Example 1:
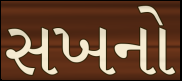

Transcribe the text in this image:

સખનો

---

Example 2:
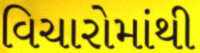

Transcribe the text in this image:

વિચારોમાંથી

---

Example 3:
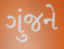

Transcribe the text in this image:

ગુંજને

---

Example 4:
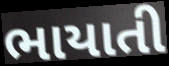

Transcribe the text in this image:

ભાયાતી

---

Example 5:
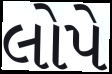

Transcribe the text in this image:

લોપે